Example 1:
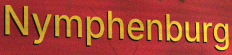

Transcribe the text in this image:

Nymphenburg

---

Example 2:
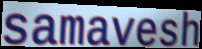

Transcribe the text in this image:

samavesh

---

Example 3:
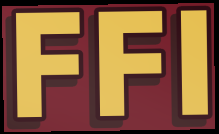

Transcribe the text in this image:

FFI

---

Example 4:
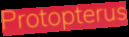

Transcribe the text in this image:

Protopterus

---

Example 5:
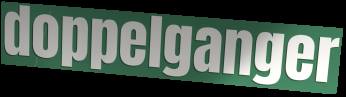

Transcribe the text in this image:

doppelganger